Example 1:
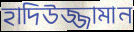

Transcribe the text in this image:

হাদিউজ্জামান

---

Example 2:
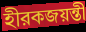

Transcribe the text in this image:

হীরকজয়ন্তী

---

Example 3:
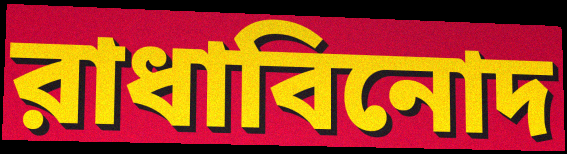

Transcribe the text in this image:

রাধাবিনোদ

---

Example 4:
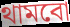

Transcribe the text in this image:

থামবো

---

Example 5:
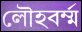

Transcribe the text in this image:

লৌহবর্ম্ম